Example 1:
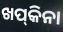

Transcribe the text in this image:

ଖପ୍‌କିନା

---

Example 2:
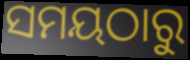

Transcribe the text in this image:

ସମୟଠାରୁ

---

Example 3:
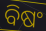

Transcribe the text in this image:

ବିଷଂ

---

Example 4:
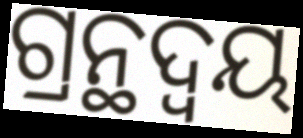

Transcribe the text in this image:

ଗ୍ରନ୍ଥଦ୍ଵୟ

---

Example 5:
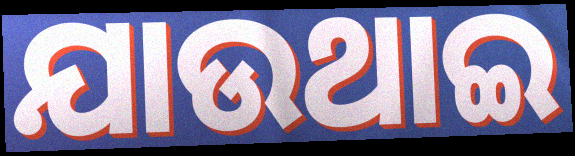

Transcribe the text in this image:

ଯାଉଥାଇ